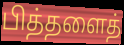
பித்தளைத்